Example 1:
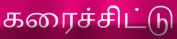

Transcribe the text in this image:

கரைச்சிட்டு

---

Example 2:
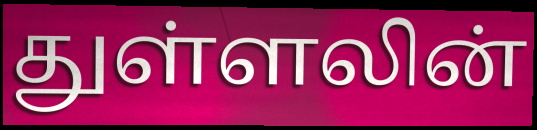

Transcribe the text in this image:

துள்ளலின்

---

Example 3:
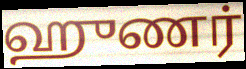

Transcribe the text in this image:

ஹுணர்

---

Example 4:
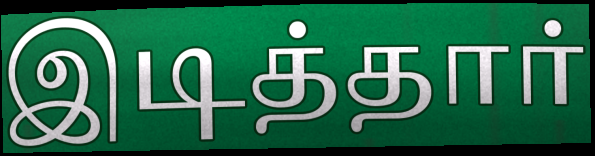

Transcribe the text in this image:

இடித்தார்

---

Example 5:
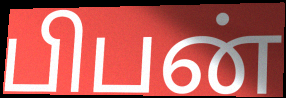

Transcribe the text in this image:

பிபன்